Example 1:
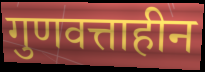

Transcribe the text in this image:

गुणवत्ताहीन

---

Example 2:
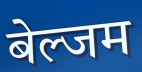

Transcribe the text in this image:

बेल्जम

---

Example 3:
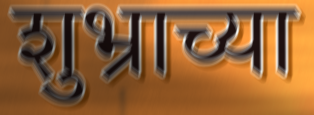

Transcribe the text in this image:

शुभ्राच्या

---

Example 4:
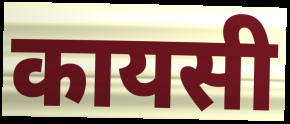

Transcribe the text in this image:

कायसी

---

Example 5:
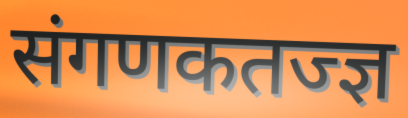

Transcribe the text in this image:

संगणकतज्ज्ञ